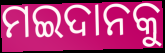
ମଇଦାନକୁ